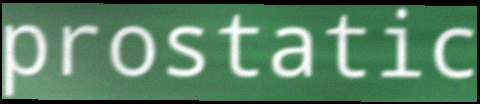
prostatic